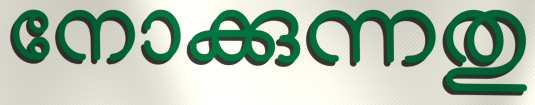
നോക്കുന്നതു